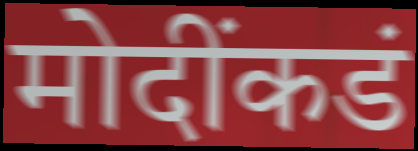
मोदींकडं